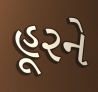
હૂરને